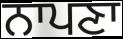
ਨਾਪਣਾ